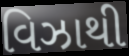
વિઝાથી